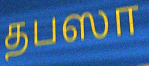
தபஸா